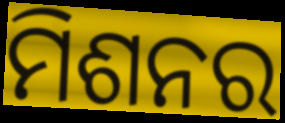
ମିଶନର